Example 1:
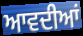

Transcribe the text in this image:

ਆਵਦੀਆਂ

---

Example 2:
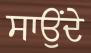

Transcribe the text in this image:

ਸਾਉਂਦੇ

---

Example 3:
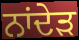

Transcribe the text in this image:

ਨਾਂਦੇੜ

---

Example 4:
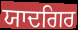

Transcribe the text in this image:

ਯਾਦਗਿਰ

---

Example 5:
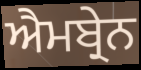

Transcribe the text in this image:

ਐਮਬ੍ਰੇਨ